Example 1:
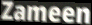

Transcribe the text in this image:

Zameen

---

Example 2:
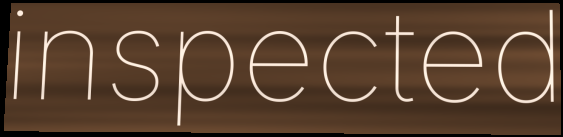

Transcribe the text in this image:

inspected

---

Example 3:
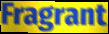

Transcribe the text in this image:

Fragrant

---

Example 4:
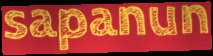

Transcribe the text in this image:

sapanun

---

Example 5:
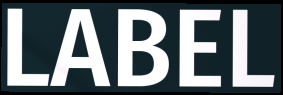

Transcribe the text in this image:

LABEL